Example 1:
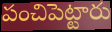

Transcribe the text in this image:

పంచిపెట్టారు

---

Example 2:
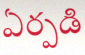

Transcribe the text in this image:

ఏర్పడి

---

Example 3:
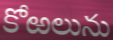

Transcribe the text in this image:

కోఱలును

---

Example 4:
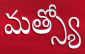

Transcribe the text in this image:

మత్స్యో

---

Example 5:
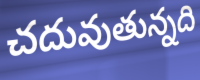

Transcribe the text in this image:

చదువుతున్నది